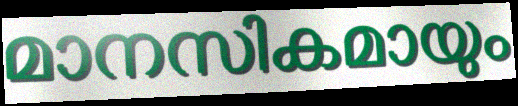
മാനസികമായും